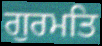
ਗੁਰਮਤਿ